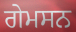
ਗੇਮਸਨ